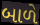
બાળે